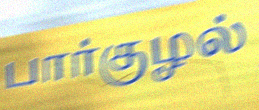
பார்குழல்